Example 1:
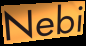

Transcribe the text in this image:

Nebi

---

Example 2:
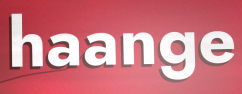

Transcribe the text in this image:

haange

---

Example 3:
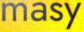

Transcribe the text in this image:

masy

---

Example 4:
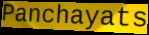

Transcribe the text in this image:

Panchayats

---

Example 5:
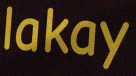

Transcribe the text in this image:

lakay